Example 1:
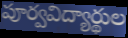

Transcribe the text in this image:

పూర్వవిద్యార్థుల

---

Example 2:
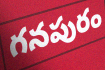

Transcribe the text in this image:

గనపురం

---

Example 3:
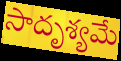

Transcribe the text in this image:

సాదృశ్యమే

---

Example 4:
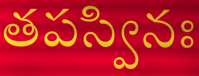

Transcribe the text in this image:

తపస్వినః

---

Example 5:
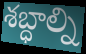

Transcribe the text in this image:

శబ్ధాల్ని